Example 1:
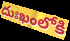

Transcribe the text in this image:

దుఃఖంలోకి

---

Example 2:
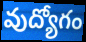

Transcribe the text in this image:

వుద్యోగం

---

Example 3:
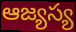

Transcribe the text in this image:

ఆజ్యస్య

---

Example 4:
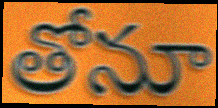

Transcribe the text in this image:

తోనూ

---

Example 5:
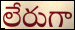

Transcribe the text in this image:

లేరుగా